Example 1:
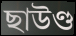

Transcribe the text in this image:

ছাউণ্ড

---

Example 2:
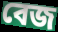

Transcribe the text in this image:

বেজ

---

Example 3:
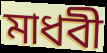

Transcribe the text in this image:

মাধবী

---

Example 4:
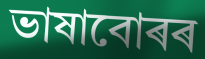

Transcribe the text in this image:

ভাষাবোৰৰ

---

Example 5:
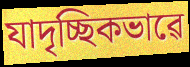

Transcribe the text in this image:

যাদৃচ্ছিকভাৱে